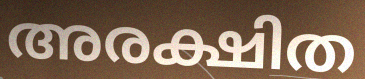
അരക്ഷിത